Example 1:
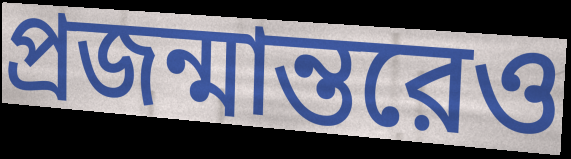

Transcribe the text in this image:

প্রজন্মান্তরেও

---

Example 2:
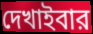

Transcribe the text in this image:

দেখাইবার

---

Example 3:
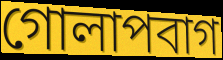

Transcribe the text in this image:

গোলাপবাগ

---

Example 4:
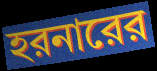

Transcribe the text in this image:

হরনারের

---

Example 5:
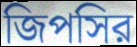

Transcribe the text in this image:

জিপসির